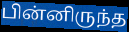
பின்னிருந்த